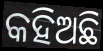
କହିଅଛି